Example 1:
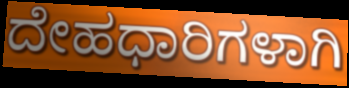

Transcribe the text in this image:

ದೇಹಧಾರಿಗಳಾಗಿ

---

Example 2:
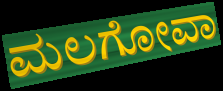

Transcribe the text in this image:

ಮಲಗೋವಾ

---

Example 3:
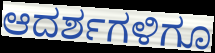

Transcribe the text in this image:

ಆದರ್ಶಗಳಿಗೂ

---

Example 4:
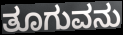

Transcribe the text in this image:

ತೂಗುವನು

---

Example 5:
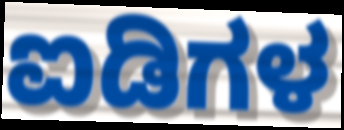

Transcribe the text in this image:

ಐಡಿಗಳ